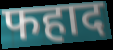
फहाद